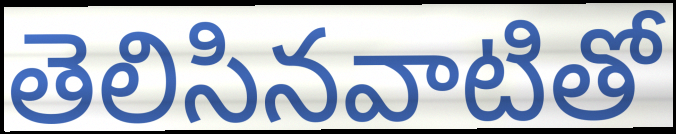
తెలిసినవాటితో